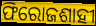
ଫିରୋଜଶାହୀ